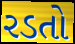
રડતો